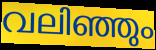
വലിഞ്ഞും